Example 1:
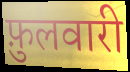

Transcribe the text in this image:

फ़ुलवारी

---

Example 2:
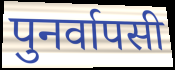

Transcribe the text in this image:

पुनर्वापसी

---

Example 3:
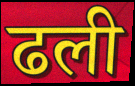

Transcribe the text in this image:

ढली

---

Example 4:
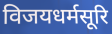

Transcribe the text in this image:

विजयधर्मसूरि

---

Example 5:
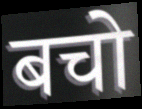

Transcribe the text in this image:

बचो